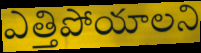
ఎత్తిపోయాలని